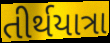
તીર્થયાત્રા